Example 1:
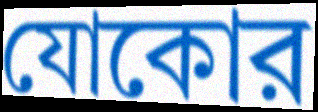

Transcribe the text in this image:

যোকোর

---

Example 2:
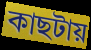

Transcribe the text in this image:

কাছটায়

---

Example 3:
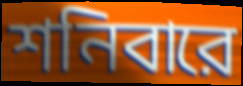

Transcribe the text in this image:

শনিবারে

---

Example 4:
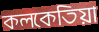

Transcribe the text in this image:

কলকেতিয়া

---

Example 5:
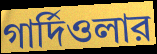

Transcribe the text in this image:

গার্দিওলার